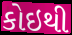
કોઇથી